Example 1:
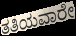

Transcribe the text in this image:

ತತಿಯವಾರೇ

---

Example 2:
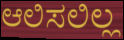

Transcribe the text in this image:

ಆಲಿಸಲಿಲ್ಲ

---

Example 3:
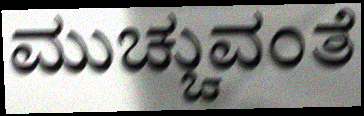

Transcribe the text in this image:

ಮುಚ್ಚುವಂತೆ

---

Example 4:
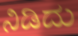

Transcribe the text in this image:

ನಿಡಿದು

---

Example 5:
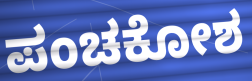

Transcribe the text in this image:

ಪಂಚಕೋಶ